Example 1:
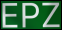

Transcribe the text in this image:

EPZ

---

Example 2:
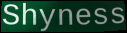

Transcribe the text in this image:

Shyness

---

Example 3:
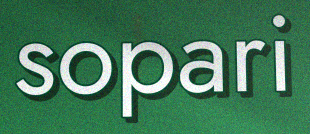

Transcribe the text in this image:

sopari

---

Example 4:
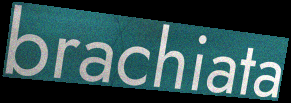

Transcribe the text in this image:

brachiata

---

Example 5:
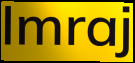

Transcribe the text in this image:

Imraj